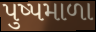
પુષ્પમાળા